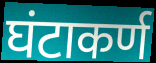
घंटाकर्ण